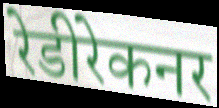
रेडीरेकनर